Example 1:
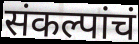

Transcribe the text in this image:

संकल्पांचं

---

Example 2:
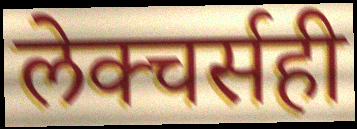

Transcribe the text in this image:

लेक्चर्सही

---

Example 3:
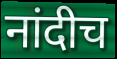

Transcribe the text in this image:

नांदीच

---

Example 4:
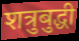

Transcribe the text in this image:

शत्रुबुद्धी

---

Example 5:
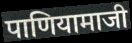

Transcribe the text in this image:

पाणियामाजी